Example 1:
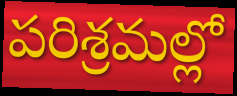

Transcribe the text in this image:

పరిశ్రమల్లో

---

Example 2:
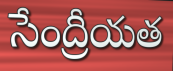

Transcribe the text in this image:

సేంద్రీయత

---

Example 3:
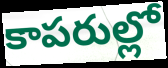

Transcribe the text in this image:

కాపరుల్లో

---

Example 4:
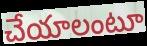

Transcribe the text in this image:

చేయాలంటూ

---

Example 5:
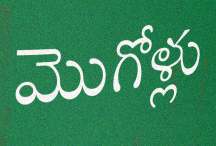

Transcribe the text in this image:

మొగోళ్లు